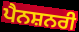
ਪੈਨਸ਼ਨਰੀ